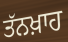
ਤੱਨਖ਼ਾਹ